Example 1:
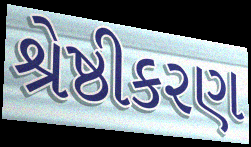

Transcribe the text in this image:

શ્રેષ્ઠીકરણ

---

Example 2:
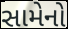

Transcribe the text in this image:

સામેનો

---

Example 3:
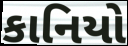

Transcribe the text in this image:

કાનિયો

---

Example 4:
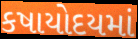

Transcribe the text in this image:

કષાયોદયમાં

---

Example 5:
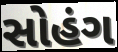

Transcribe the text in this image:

સોહંગ